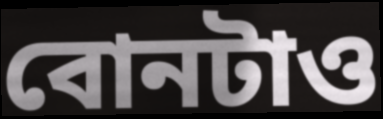
বোনটাও